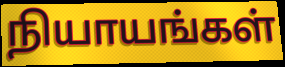
நியாயங்கள்